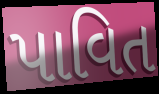
પાવિત